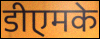
डीएमके